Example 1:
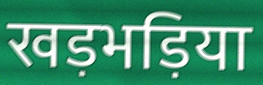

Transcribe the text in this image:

खड़भड़िया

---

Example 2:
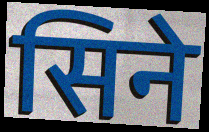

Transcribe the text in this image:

सिने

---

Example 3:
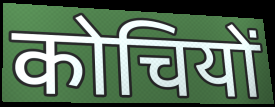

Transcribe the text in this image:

कोचियों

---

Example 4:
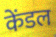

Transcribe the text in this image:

केंडल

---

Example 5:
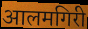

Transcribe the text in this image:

आलमगिरी